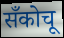
सँकोचू